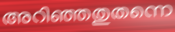
അറിഞ്ഞതുതന്നെ